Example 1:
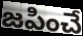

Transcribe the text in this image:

జపించే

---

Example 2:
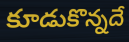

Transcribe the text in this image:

కూడుకొన్నదే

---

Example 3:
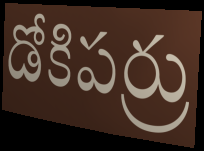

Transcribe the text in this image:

డోకిపర్రు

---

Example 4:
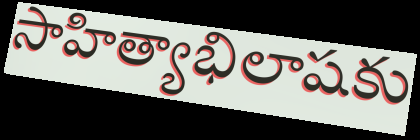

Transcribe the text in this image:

సాహిత్యాభిలాషకు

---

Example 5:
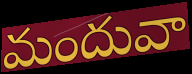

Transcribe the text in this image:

మందువా